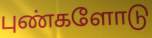
புண்களோடு